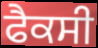
ਫੈਕਸੀ